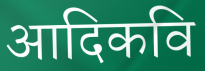
आदिकवि